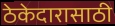
ठेकेदारासाठी